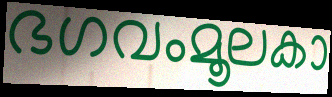
ഭഗവംമൂലകാ